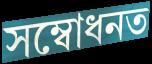
সম্বোধনত